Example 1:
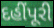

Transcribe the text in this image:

દહીંપૂરી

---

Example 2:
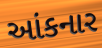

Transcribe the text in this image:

આંકનાર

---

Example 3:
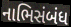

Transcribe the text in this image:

નાભિસંબંધ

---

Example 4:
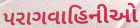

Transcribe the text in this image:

પરાગવાહિનીઓ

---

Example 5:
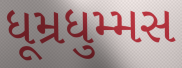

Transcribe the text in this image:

ધૂમ્રધુમ્મસ